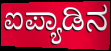
ಐಪ್ಯಾಡಿನ